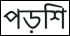
পড়শি